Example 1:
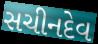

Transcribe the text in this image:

સચીનદેવ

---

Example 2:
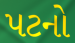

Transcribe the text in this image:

પટનો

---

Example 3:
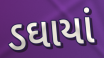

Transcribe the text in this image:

ડઘાયાં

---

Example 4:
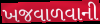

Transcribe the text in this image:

ખજવાળવાની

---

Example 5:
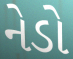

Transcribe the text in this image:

નેડો